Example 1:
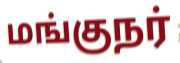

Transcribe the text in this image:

மங்குநர்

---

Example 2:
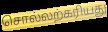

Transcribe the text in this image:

சொல்லற்கரியது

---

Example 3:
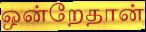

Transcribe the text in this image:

ஒன்றேதான்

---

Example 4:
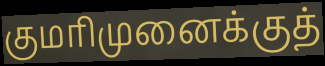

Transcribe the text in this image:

குமரிமுனைக்குத்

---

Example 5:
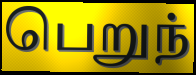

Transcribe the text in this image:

பெறுந்